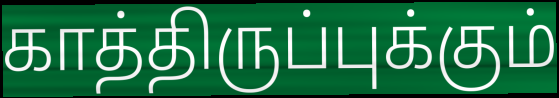
காத்திருப்புக்கும்